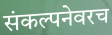
संकल्पनेवरच